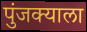
पुंजक्याला